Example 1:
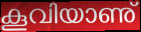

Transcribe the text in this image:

കൂവിയാണു്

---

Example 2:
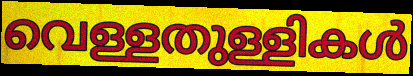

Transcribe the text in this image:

വെള്ളതുള്ളികൾ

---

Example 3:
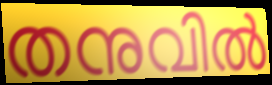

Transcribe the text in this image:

തനുവിൽ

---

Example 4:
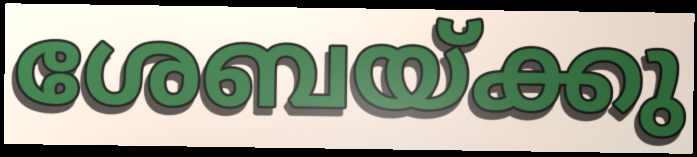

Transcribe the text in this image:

ശേബയ്ക്കു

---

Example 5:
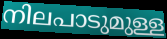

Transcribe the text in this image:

നിലപാടുമുള്ള